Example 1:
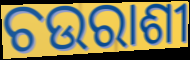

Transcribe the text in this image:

ଚଉରାଶୀ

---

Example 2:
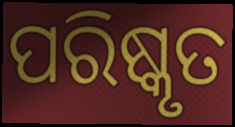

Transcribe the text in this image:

ପରିଷ୍କୃତ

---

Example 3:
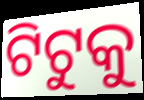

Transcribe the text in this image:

ଟିଟୁକୁ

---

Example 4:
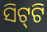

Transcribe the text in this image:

ସିଟ୍‌ଟି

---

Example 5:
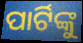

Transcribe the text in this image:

ପାର୍ଟିଙ୍କୁ